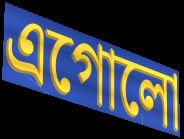
এগোলো